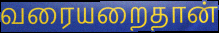
வரையறைதான்